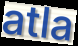
atla